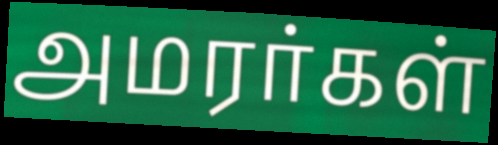
அமரர்கள்